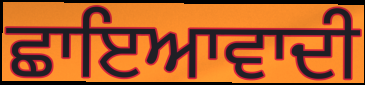
ਛਾਇਆਵਾਦੀ